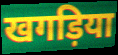
खगड़िया